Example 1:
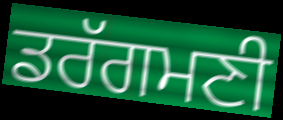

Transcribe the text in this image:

ਡਰੱਗਮਣੀ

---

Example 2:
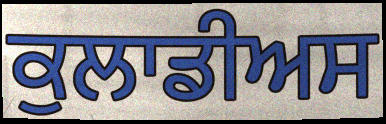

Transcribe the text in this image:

ਕੁਲਾਡੀਅਸ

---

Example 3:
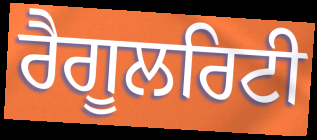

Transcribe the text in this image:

ਰੈਗੂਲਰਿਟੀ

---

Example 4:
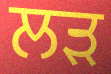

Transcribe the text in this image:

ਲੜ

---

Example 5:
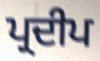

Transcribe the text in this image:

ਪ੍ਰਦੀਪ